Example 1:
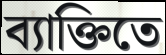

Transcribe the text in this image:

ব্যাক্তিতে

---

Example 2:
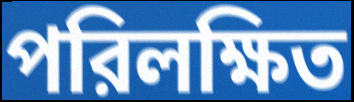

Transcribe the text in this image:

পরিলক্ষিত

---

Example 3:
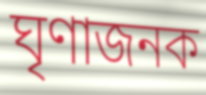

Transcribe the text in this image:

ঘৃণাজনক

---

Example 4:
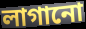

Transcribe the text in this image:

লাগানো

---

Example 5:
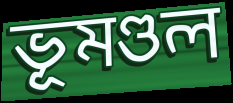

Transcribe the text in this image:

ভূমণ্ডল